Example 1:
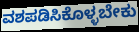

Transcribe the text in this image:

ವಶಪಡಿಸಿಕೊಳ್ಳಬೇಕು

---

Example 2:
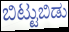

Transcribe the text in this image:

ಬಿಟ್ಟುಬಿಡು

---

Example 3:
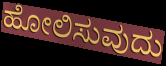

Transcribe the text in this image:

ಹೋಲಿಸುವುದು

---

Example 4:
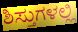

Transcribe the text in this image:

ಶಿಸ್ತುಗಳಲ್ಲಿ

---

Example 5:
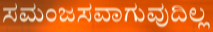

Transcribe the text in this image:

ಸಮಂಜಸವಾಗುವುದಿಲ್ಲ